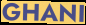
GHANI